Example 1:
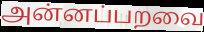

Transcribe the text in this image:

அன்னப்பறவை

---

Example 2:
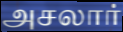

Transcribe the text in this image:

அசலார்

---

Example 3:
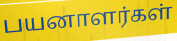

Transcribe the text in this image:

பயனாளர்கள்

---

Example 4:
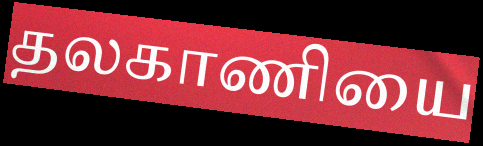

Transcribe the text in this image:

தலகாணியை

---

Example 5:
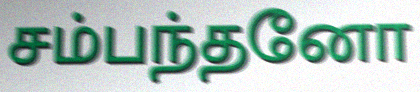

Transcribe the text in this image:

சம்பந்தனோ